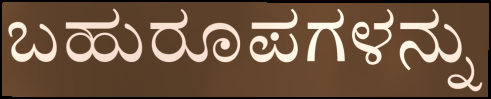
ಬಹುರೂಪಗಳನ್ನು